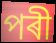
পৰী